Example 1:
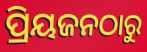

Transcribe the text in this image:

ପ୍ରିୟଜନଠାରୁ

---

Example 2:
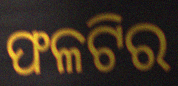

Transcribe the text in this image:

ଫଳଟିର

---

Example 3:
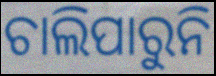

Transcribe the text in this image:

ଚାଲିପାରୁନି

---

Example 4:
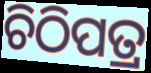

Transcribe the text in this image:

ଚିଠିପତ୍ର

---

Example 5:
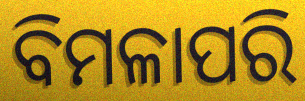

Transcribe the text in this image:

ବିମଳାପରି